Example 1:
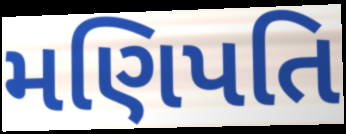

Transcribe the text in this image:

મણિપતિ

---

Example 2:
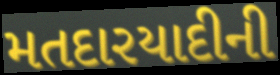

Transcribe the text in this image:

મતદારયાદીની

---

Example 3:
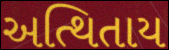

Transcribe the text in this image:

અત્થિતાય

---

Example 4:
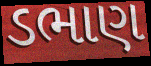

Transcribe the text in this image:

ડભાણ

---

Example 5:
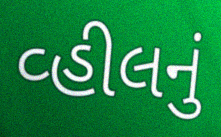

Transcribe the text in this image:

વ્હીલનું